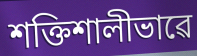
শক্তিশালীভাৱে